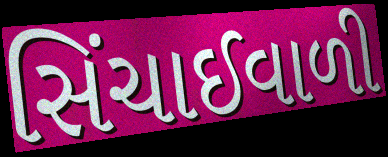
સિંચાઈવાળી